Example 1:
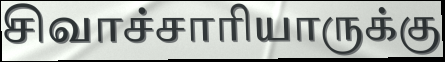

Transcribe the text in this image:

சிவாச்சாரியாருக்கு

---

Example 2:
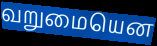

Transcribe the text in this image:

வறுமையென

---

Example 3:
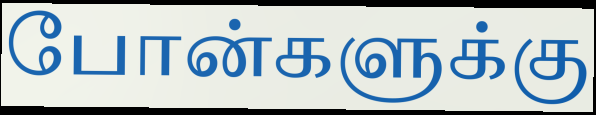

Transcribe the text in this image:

போன்களுக்கு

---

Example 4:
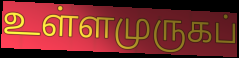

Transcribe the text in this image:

உள்ளமுருகப்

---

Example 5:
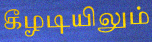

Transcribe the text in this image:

கீழடியிலும்